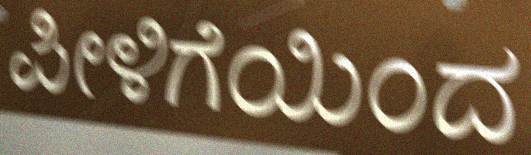
ಪೀಳಿಗೆಯಿಂದ